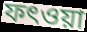
ফৎওয়া